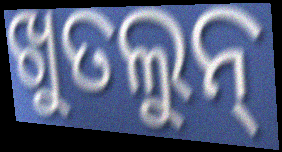
ଖୁତଲୁନ୍